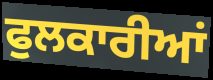
ਫੁਲਕਾਰੀਆਂ